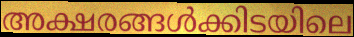
അക്ഷരങ്ങൾക്കിടയിലെ